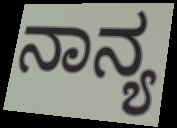
ನಾನ್ಯ